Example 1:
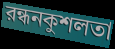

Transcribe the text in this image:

রন্ধনকুশলতা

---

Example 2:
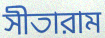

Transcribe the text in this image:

সীতারাম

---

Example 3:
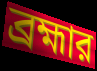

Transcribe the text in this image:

ব্রহ্মার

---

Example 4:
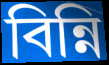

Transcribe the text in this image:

বিন্নি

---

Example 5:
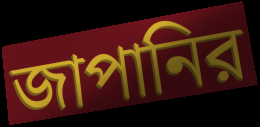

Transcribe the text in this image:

জাপানির